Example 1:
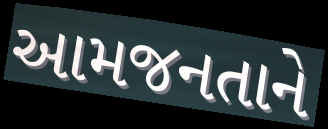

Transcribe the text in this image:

આમજનતાને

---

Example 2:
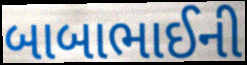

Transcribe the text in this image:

બાબાભાઈની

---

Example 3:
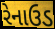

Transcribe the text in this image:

રેનાઉડ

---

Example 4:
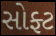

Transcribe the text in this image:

સોફ્ટ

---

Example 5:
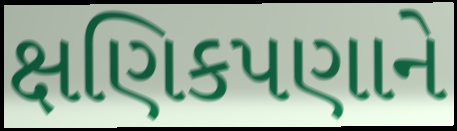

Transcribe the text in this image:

ક્ષણિકપણાને